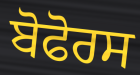
ਬੋਫੋਰਸ